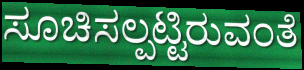
ಸೂಚಿಸಲ್ಪಟ್ಟಿರುವಂತೆ